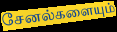
சேனல்களையும்